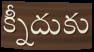
క్నీదుకు